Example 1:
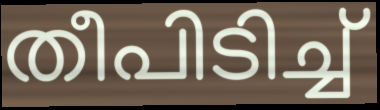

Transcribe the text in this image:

തീപിടിച്ച്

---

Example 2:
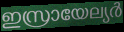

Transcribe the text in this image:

ഇസ്രായേല്യർ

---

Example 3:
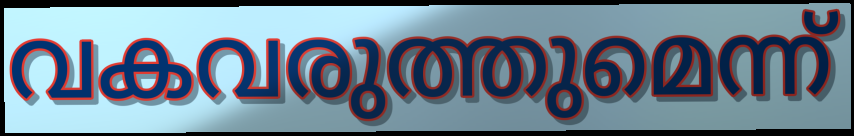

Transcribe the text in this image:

വകവരുത്തുമെന്ന്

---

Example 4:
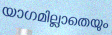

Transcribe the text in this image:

യാഗമില്ലാതെയും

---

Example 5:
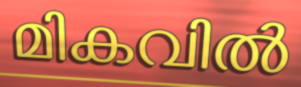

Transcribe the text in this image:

മികവിൽ